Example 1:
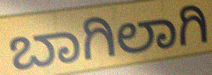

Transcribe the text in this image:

ಬಾಗಿಲಾಗಿ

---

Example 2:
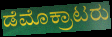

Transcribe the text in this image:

ಡೆಮೊಕ್ರಾಟರು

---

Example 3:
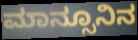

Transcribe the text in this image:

ಮಾನ್ಸೂನಿನ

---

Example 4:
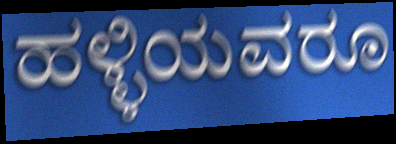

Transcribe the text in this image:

ಹಳ್ಳಿಯವರೂ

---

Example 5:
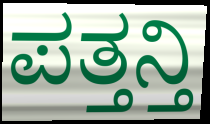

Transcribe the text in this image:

ಪತ್ತನ್ತಿ